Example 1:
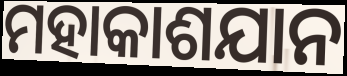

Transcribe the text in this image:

ମହାକାଶଯାନ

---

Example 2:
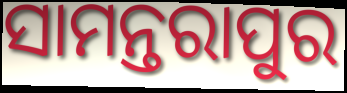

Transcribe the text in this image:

ସାମନ୍ତରାପୁର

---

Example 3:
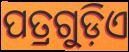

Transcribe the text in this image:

ପତ୍ରଗୁଡ଼ିଏ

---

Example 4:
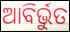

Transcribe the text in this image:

ଆବିର୍ଭୁତ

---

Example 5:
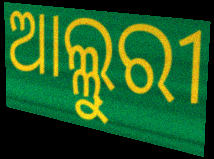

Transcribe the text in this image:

ଆଲ୍ଲୁରୀ